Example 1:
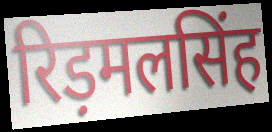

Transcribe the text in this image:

रिड़मलसिंह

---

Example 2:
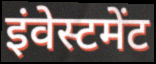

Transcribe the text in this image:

इंवेस्टमेंट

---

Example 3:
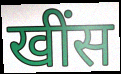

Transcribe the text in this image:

खींस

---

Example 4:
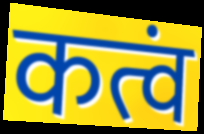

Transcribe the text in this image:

कत्वं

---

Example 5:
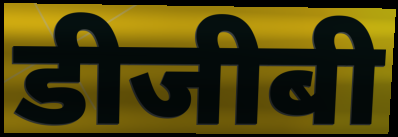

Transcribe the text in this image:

डीजीबी